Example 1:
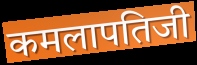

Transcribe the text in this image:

कमलापतिजी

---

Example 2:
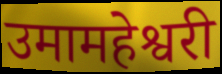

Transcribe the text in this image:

उमामहेश्वरी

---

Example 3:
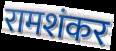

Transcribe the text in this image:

रामशंकर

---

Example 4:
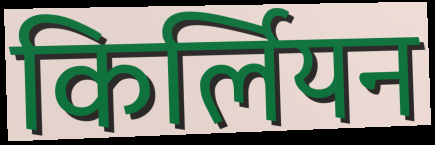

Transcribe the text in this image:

किर्लियन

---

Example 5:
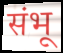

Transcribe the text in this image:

संभू